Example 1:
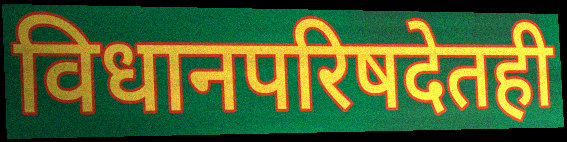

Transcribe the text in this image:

विधानपरिषदेतही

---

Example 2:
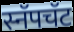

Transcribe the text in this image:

स्नॅपचॅट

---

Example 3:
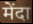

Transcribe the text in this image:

मेंदा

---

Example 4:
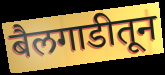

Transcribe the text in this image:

बैलगाडीतून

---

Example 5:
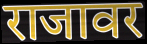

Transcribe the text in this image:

राजावर